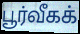
பூர்வீகக்